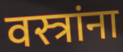
वस्त्रांना